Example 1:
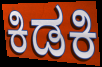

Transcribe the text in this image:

ಕಿಡಕಿ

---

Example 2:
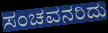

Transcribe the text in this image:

ಸಂಚವನರಿದು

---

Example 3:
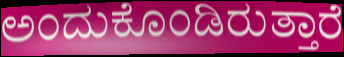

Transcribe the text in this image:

ಅಂದುಕೊಂಡಿರುತ್ತಾರೆ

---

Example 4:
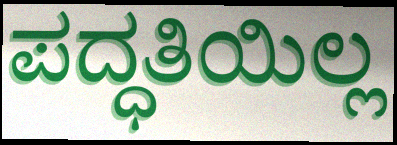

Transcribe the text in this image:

ಪದ್ಧತಿಯಿಲ್ಲ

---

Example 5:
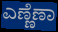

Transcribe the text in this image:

ಎಣ್ಣೆಣಾ